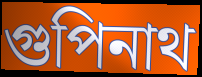
গুপিনাথ